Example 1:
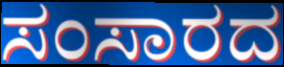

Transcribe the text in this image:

ಸಂಸಾರದ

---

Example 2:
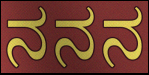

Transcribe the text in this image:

ನನನ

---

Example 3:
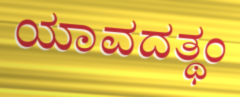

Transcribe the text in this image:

ಯಾವದತ್ಥಂ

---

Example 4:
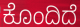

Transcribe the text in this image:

ಕೊಂದಿದೆ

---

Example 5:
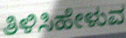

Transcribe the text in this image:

ತಿಳಿಸಿಹೇಳುವ